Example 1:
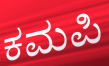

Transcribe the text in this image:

ಕಮಪಿ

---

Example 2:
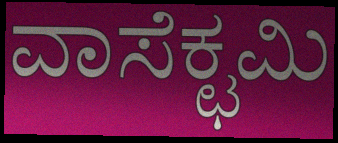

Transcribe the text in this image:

ವಾಸೆಕ್ಟಮಿ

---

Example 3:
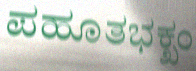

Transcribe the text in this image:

ಪಹೂತಭಕ್ಖಂ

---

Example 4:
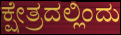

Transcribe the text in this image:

ಕ್ಷೇತ್ರದಲ್ಲಿಂದು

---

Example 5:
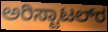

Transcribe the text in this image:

ಅರಿಸ್ಟಾಟಲ್‍ರ